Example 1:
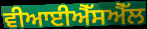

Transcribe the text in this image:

ਵੀਆਈਐੱਸਐੱਲ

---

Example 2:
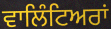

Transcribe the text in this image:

ਵਾਲਿੰਟਿਅਰਾਂ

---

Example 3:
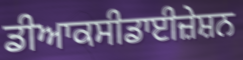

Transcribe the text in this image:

ਡੀਆਕਸੀਡਾਈਜ਼ੇਸ਼ਨ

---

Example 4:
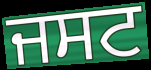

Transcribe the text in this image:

ਜਸਟ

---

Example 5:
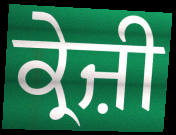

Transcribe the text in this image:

ਕ੍ਰੇਜ਼ੀ